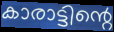
കാരാട്ടിന്റെ